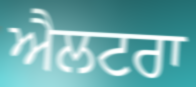
ਐਲਟਰਾ